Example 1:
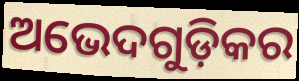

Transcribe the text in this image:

ଅଭେଦଗୁଡ଼ିକର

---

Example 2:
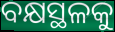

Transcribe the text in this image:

ବକ୍ଷସ୍ଥଳକୁ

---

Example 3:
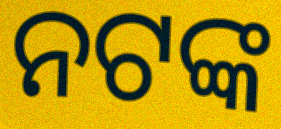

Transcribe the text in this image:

ନଟଙ୍କ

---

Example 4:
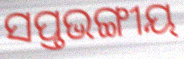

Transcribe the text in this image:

ସପ୍ତଭଙ୍ଗୀୟ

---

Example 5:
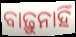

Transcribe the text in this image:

ବାଢ଼ୁନାହିଁ